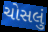
ચોસલું